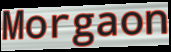
Morgaon